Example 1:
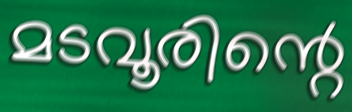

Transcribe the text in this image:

മടവൂരിന്റെ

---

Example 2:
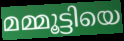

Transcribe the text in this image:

മമ്മൂട്ടിയെ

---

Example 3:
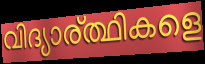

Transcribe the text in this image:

വിദ്യാര്ത്ഥികളെ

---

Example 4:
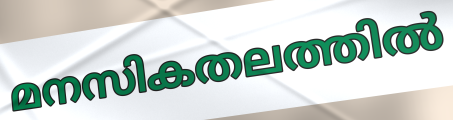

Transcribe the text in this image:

മനസികതലത്തിൽ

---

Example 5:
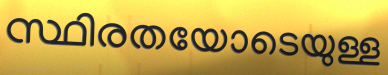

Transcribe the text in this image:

സ്ഥിരതയോടെയുള്ള